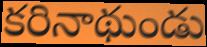
కరినాథుండు